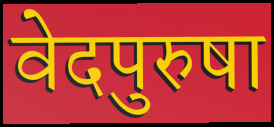
वेदपुरुषा